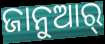
ଜାନୁଆର୍